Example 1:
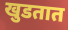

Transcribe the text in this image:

खुडतात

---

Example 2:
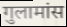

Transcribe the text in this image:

गुलामांस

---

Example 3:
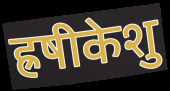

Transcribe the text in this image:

ह्रषीकेशु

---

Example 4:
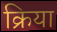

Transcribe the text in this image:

क्रिया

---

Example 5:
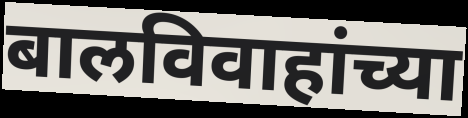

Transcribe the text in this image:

बालविवाहांच्या